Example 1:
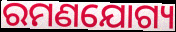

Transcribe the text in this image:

ରମଣଯୋଗ୍ୟ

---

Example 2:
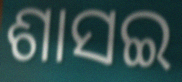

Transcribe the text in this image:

ଶାସଇ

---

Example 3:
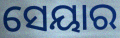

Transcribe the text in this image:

ସେୟାର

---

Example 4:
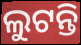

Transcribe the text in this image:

ଲୁଟନ୍ତି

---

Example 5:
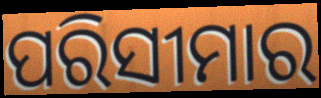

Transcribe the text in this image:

ପରିସୀମାର